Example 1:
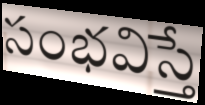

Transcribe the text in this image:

సంభవిస్తే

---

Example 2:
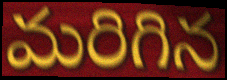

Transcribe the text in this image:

మరిగిన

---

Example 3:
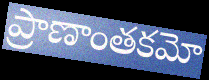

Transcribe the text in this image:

ప్రాణాంతకమో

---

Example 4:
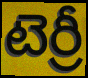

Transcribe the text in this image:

టెర్రీ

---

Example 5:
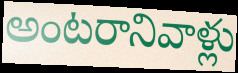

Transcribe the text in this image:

అంటరానివాళ్లు